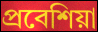
প্রবেশিয়া